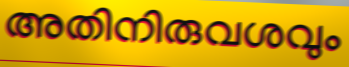
അതിനിരുവശവും